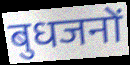
बुधजनों